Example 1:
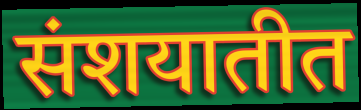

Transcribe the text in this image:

संशयातीत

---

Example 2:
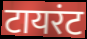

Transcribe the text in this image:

टायरंट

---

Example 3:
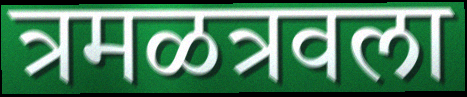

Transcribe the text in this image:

त्रमळत्रवला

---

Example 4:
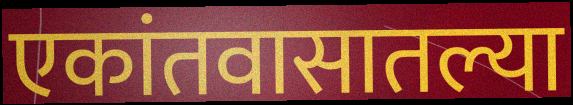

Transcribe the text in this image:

एकांतवासातल्या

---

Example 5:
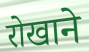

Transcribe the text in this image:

रोखाने